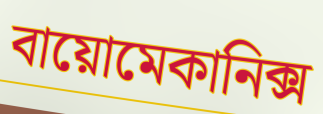
বায়োমেকানিক্স